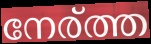
നേര്ത്ത